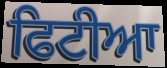
ਫਿਟੀਆ